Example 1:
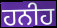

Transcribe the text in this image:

ਹਨੀਹ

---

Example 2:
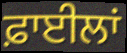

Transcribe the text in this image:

ਫ਼ਾਈਲਾਂ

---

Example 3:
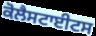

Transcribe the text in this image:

ਕੋਲੈਸਟਾਈਟਸ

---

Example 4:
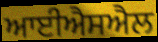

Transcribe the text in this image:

ਆਈਐਸਐਲ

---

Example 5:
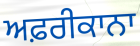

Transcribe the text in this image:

ਅਫ਼ਰੀਕਾਨਾ